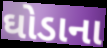
ઘોડાના